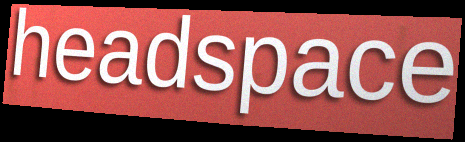
headspace